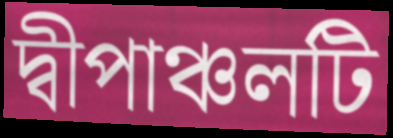
দ্বীপাঞ্চলটি